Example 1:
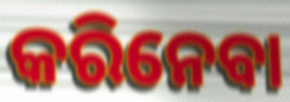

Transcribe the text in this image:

କରିନେବା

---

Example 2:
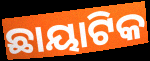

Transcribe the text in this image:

ଛାୟାଟିକ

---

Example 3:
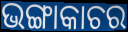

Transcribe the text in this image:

ଭଙ୍ଗାକାଚର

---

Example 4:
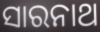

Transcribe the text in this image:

ସାରନାଥ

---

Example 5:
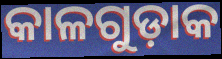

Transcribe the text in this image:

କାଳଗୁଡ଼ାକ